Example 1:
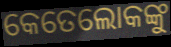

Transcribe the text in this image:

କେତେଲୋକଙ୍କୁ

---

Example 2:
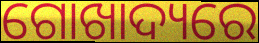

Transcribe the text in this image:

ଗୋଖାଦ୍ୟରେ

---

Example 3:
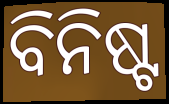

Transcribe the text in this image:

ବିନିଷ୍ଟ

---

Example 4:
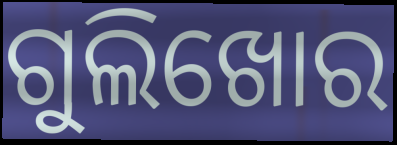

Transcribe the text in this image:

ଗୁଲିଖୋର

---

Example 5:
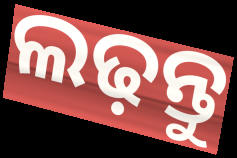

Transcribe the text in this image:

ଲଢ଼ନ୍ତୁ